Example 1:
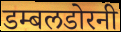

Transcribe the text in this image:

डम्बलडोरनी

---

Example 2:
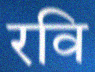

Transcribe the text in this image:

रवि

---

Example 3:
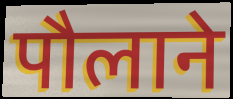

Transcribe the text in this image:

पौलाने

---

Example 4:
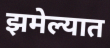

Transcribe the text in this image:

झमेल्यात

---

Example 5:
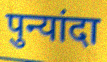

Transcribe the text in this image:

पुन्यांदा